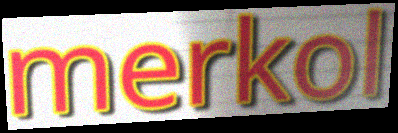
merkol